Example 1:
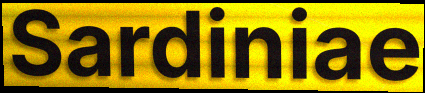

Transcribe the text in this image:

Sardiniae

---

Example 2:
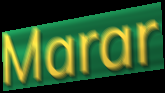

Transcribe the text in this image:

Marar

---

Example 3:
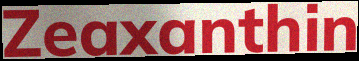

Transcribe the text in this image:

Zeaxanthin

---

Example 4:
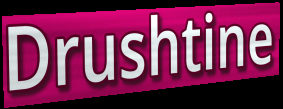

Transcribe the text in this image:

Drushtine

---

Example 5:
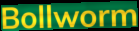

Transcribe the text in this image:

Bollworm